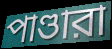
পাণ্ডারা